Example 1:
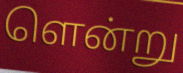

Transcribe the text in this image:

ளென்று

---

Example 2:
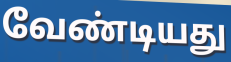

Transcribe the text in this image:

வேண்டியது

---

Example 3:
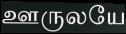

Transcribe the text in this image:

ஊருலயே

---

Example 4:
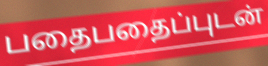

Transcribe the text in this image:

பதைபதைப்புடன்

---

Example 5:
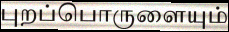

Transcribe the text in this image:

புறப்பொருளையும்